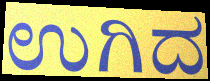
ಉಗಿದ